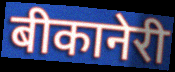
बीकानेरी